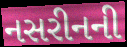
નસરીનની